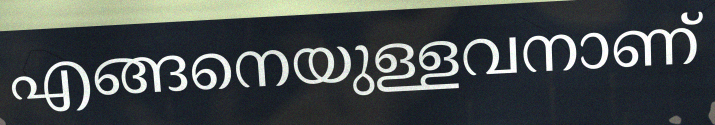
എങ്ങനെയുള്ളവനാണ്